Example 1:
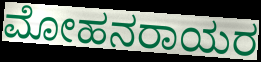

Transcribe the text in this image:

ಮೋಹನರಾಯರ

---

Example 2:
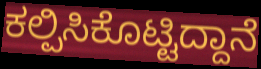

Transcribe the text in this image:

ಕಲ್ಪಿಸಿಕೊಟ್ಟಿದ್ದಾನೆ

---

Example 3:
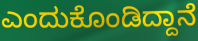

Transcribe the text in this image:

ಎಂದುಕೊಂಡಿದ್ದಾನೆ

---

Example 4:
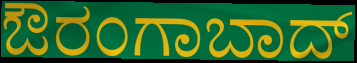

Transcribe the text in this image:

ಔರಂಗಾಬಾದ್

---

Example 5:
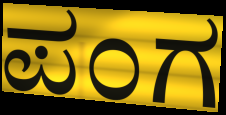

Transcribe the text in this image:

ಪಂಗ